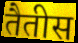
तैतीस